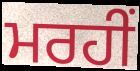
ਮਰਹੀਂ